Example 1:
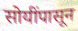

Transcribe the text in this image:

सोयींपासून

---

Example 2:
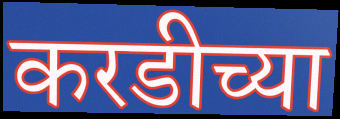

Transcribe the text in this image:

करडीच्या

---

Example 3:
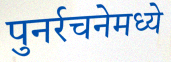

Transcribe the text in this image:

पुनर्रचनेमध्ये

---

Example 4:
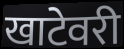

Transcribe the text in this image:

खाटेवरी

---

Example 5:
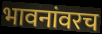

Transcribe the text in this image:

भावनांवरच